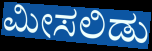
ಮೀಸಲಿಡು